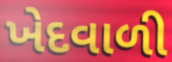
ખેદવાળી